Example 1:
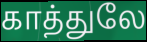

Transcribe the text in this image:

காத்துலே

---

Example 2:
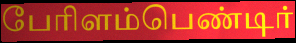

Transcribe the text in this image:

பேரிளம்பெண்டிர்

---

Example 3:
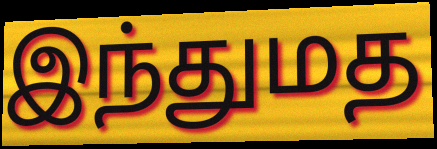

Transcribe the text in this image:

இந்துமத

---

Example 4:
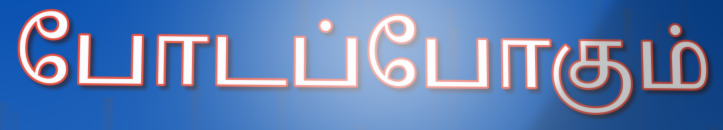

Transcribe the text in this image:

போடப்போகும்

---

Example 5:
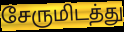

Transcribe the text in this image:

சேருமிடத்து